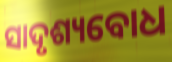
ସାଦୃଶ୍ୟବୋଧ